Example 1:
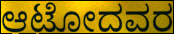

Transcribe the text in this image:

ಆಟೋದವರ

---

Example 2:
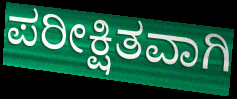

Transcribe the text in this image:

ಪರೀಕ್ಷಿತವಾಗಿ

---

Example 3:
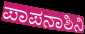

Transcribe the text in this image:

ಪಾಪನಾಶಿನಿ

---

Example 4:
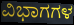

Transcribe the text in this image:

ವಿಭಾಗಗಳ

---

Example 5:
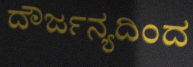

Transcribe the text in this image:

ದೌರ್ಜನ್ಯದಿಂದ